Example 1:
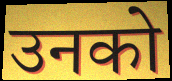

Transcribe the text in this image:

उनको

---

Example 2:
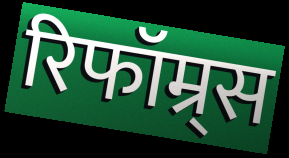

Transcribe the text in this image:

रिफॉम्र्स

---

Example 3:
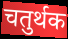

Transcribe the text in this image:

चतुर्थक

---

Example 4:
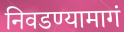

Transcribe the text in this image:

निवडण्यामागं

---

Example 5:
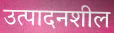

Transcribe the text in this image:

उत्पादनशील